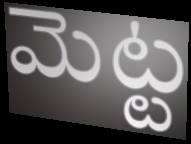
మెట్ట